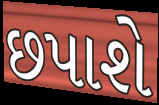
છપાશે